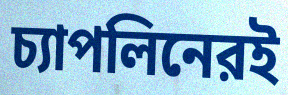
চ্যাপলিনেরই